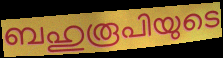
ബഹുരൂപിയുടെ